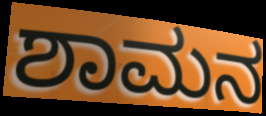
ಶಾಮನ